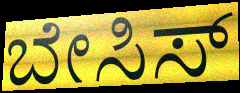
ಬೇಸಿಸ್